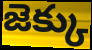
జెక్కు